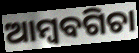
ଆମ୍ବବଗିଚା